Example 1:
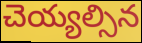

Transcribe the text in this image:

చెయ్యల్సిన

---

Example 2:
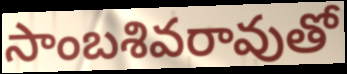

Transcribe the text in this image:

సాంబశివరావుతో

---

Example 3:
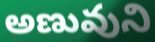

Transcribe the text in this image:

అణువుని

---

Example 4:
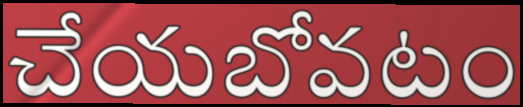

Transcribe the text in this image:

చేయబోవటం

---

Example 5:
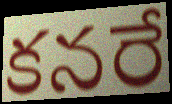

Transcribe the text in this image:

కనరే